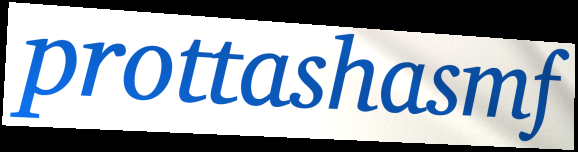
prottashasmf